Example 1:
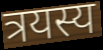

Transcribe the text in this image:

त्रयस्य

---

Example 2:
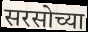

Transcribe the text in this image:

सरसोच्या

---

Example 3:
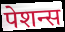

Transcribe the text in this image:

पेशन्स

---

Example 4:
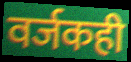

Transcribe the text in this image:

वर्जकही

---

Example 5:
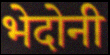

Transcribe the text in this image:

भेदोनी